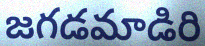
జగడమాడిరి